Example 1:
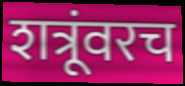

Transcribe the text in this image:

शत्रूंवरच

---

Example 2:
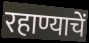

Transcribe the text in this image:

रहाण्याचें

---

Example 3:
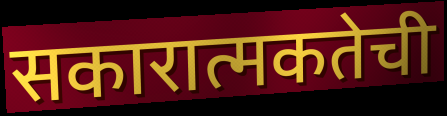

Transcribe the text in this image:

सकारात्मकतेची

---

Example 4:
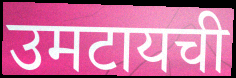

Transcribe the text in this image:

उमटायची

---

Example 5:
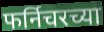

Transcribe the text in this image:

फर्निचरच्या